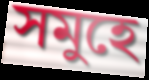
সমুহে